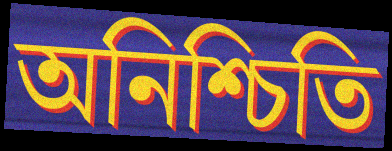
অনিশ্চিতি